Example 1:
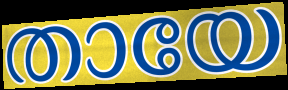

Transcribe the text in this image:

തായേ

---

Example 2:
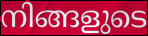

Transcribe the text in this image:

നിങ്ങളുടെ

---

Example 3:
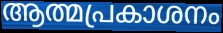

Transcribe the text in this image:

ആത്മപ്രകാശനം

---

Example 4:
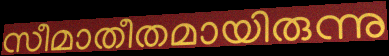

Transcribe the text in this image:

സീമാതീതമായിരുന്നു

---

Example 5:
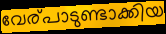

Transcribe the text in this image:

വേര്പാടുണ്ടാക്കിയ